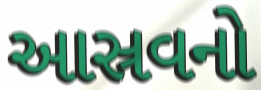
આસ્રવનો